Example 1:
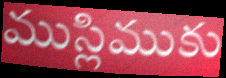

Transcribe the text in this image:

ముస్లిముకు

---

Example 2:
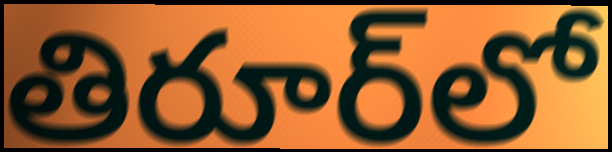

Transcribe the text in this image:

తిరూర్‌లో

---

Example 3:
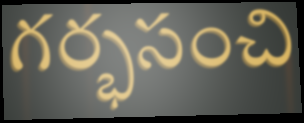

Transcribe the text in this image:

గర్భసంచి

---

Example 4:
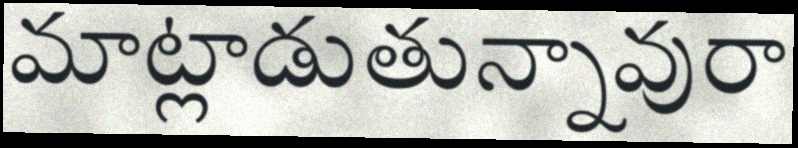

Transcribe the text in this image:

మాట్లాడుతున్నావురా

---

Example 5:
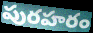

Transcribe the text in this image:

పురహరం